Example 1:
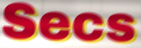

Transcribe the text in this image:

Secs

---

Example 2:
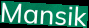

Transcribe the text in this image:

Mansik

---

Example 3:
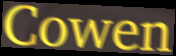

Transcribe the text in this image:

Cowen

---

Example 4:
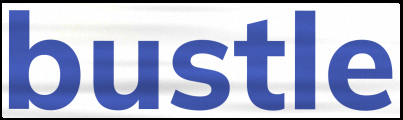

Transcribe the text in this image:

bustle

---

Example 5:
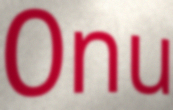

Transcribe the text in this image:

Onu